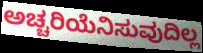
ಅಚ್ಚರಿಯೆನಿಸುವುದಿಲ್ಲ